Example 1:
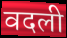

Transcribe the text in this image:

वदली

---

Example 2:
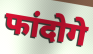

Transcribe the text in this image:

फांदोगे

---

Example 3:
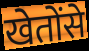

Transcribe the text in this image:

खेतोंसे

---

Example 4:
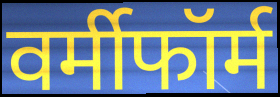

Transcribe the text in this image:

वर्मीफॉर्म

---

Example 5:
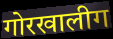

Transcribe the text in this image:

गोरखालीग